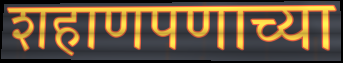
शहाणपणाच्या